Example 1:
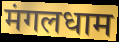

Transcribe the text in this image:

मंगलधाम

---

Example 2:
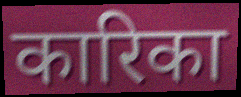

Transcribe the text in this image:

कारिका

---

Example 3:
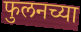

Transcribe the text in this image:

फुलनच्या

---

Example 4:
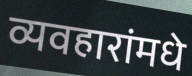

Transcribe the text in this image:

व्यवहारांमधे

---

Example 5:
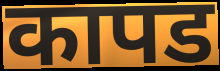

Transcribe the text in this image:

कापड